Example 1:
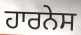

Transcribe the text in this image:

ਹਾਰਨੇਸ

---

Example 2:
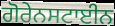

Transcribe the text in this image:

ਗੋਰੇਨਸਟਾਈਨ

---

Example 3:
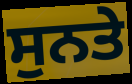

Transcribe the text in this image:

ਸੁਨਤੇ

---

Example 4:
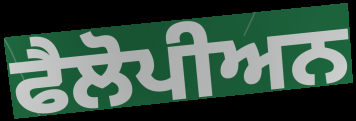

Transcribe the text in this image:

ਫੈਲੋਪੀਅਨ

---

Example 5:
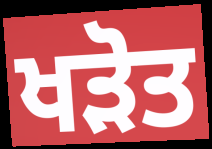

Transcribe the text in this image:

ਖੜੋਤ